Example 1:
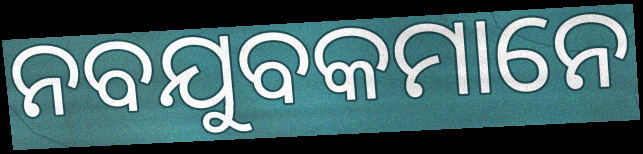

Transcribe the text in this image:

ନବଯୁବକମାନେ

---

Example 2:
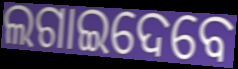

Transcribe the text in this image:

ଲଗାଇଦେବେ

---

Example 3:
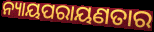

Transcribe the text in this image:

ନ୍ୟାୟପରାୟଣତାର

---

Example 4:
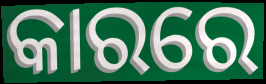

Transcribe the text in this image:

କାରରେ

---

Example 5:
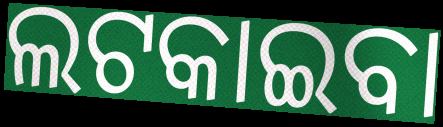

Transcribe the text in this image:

ଲଟକାଇବା